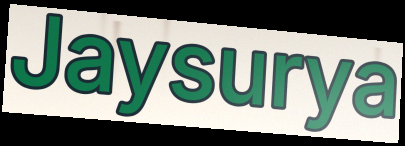
Jaysurya